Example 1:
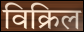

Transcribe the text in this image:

विक्रिल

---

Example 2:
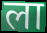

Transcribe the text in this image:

ला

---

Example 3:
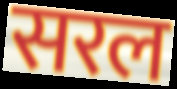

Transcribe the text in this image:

सरल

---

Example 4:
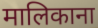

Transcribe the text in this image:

मालिकाना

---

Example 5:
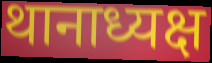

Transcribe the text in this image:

थानाध्यक्ष